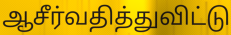
ஆசீர்வதித்துவிட்டு